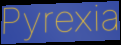
Pyrexia